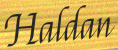
Haldan